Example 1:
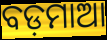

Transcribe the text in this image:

ବଡ଼ମାଆ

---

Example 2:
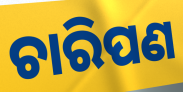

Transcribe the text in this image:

ଚାରିପଣ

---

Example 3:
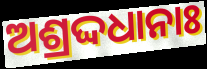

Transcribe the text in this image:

ଅଶ୍ରଦ୍ଦଧାନାଃ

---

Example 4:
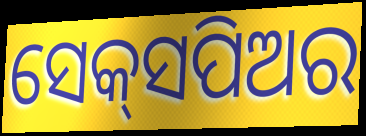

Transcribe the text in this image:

ସେକ୍‌ସପିଅର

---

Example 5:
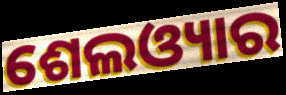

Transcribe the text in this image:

ଶେଲଓ୍ୟାର